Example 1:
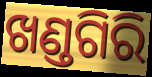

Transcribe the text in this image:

ଖଣ୍ଡଗିରି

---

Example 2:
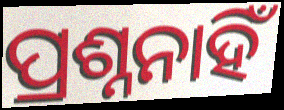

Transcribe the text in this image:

ପ୍ରଶ୍ନନାହିଁ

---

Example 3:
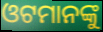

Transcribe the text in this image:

ଓଟମାନଙ୍କୁ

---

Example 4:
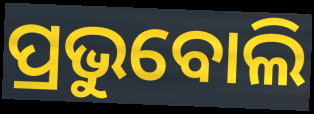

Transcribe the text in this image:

ପ୍ରଭୁବୋଲି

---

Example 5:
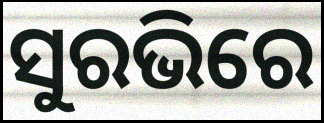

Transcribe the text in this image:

ସୁରଭିରେ